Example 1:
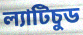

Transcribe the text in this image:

ল্যাটিচুড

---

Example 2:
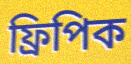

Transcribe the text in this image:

ফ্রিপিক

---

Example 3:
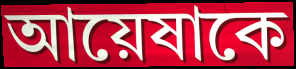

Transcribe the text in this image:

আয়েষাকে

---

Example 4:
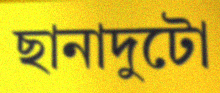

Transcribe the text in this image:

ছানাদুটো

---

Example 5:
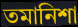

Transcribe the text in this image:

তমানিশা